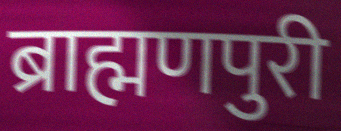
ब्राह्मणपुरी